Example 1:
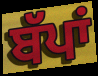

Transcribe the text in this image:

ਬੱਪਾਂ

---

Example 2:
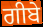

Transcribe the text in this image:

ਗੀਬੇ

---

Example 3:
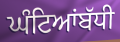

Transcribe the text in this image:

ਘੰਟਿਆਂਬੱਧੀ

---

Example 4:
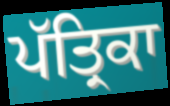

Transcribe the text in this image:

ਪੱਤ੍ਰਿਕਾ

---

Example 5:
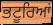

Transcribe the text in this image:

ਭਟੂਰਿਆਂ